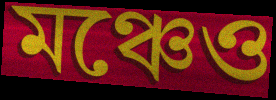
মঞ্চেও